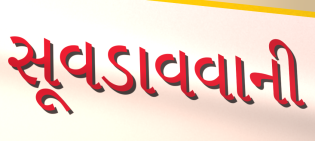
સૂવડાવવાની